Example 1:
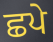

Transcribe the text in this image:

ਛਪੇ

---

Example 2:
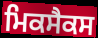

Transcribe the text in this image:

ਮਿਕਸੈਕਸ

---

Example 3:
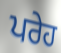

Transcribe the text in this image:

ਪਰੇਹ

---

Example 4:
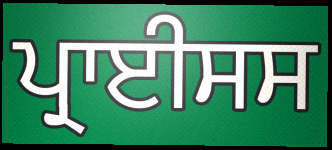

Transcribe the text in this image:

ਪ੍ਰਾਈਸਸ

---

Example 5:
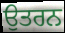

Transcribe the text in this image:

ਉਤਰਨ